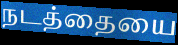
நடத்தையை